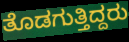
ತೊಡಗುತ್ತಿದ್ದರು